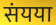
संयया